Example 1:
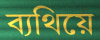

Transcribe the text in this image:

ব্যথিয়ে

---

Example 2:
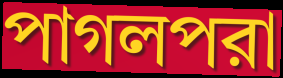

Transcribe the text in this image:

পাগলপরা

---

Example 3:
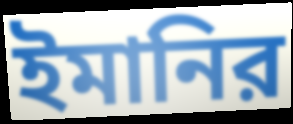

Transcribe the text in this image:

ইমানির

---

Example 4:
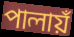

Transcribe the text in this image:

পালায়ঁ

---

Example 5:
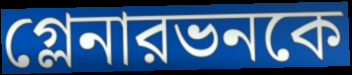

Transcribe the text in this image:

গ্লেনারভনকে